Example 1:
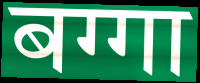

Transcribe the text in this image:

बग्गा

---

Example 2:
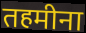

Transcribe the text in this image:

तहमीना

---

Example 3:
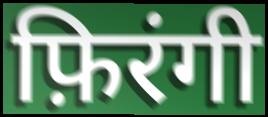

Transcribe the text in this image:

फ़िरंगी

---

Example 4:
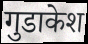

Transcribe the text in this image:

गुडाकेश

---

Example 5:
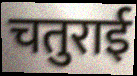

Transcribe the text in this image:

चतुराई